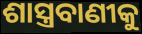
ଶାସ୍ତ୍ରବାଣୀକୁ